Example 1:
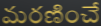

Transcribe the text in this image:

మరణించే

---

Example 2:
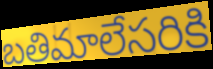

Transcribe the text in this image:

బతిమాలేసరికి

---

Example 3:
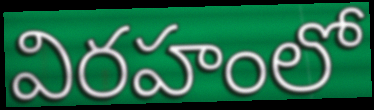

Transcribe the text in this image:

విరహంలో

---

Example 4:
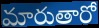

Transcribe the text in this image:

మారుతారో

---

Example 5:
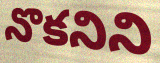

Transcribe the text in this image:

నొకనిని